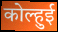
कोल्हुई